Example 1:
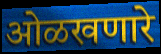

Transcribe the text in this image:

ओळखणारे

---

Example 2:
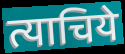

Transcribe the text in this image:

त्याचिये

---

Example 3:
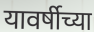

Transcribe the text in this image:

यावर्षीच्या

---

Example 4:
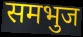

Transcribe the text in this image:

समभुज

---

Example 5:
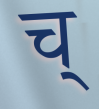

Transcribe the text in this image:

च्